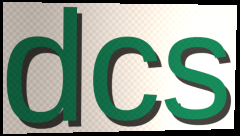
dcs